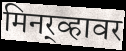
मिनर्व्हावर